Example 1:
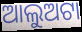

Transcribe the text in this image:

ଆଲୁଅଟା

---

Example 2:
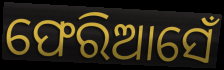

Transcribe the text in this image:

ଫେରିଆସେଁ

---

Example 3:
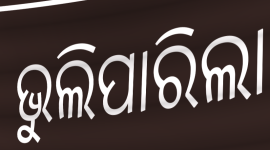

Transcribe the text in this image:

ଭୁଲିପାରିଲା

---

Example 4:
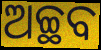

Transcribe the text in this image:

ଅଚ୍ଛବ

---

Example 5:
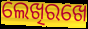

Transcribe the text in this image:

ଲେଖିରଖେ